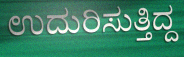
ಉದುರಿಸುತ್ತಿದ್ದ